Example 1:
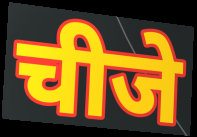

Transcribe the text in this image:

चीजे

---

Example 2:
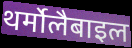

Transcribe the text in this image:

थर्मोलैबाइल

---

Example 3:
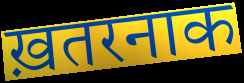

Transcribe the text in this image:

ख़तरनाक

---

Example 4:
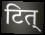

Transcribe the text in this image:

टित्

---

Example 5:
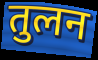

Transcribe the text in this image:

तुलन